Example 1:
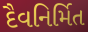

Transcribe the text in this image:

દૈવનિર્મિત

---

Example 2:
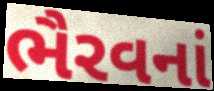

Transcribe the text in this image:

ભૈરવનાં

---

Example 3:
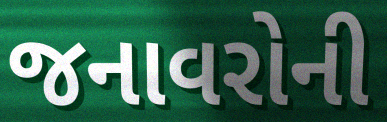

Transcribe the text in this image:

જનાવરોની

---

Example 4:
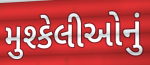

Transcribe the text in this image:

મુશ્કેલીઓનું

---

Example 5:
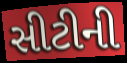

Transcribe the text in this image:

સીટીની